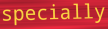
specially